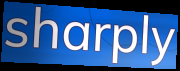
sharply